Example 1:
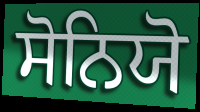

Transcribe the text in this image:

ਸੋਨਿਯੋ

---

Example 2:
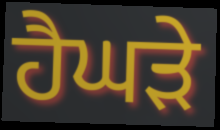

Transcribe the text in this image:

ਹੈਘੜੇ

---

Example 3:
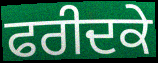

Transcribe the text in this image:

ਫਰੀਦਕੇ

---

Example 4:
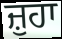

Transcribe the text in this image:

ਜ਼ੁਹਾ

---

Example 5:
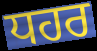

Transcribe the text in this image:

ਧਹਰ